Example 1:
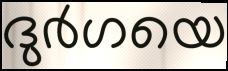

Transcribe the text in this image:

ദുർഗയെ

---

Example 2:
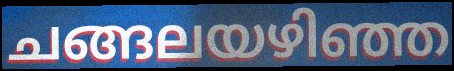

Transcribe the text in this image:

ചങ്ങലയഴിഞ്ഞ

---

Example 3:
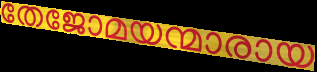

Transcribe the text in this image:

തേജോമയന്മാരായ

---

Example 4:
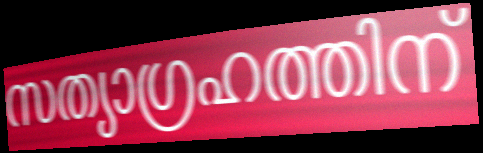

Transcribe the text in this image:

സത്യാഗ്രഹത്തിന്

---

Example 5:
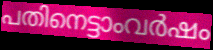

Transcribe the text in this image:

പതിനെട്ടാംവർഷം